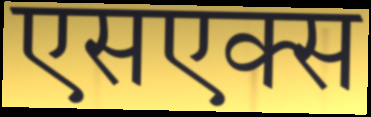
एसएक्स